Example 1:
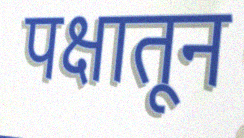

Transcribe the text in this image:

पक्षातून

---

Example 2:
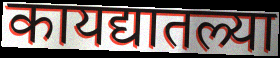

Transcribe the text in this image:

कायद्यातल्या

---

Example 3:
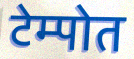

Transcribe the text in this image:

टेम्पोत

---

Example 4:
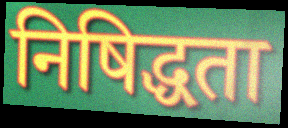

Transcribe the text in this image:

निषिद्धता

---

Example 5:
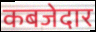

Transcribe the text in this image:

कबजेदार